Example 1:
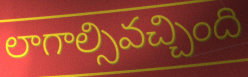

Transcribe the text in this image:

లాగాల్సివచ్చింది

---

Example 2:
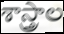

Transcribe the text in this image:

శాస్త్రాల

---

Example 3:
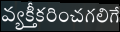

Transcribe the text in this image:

వ్యక్తీకరించగలిగే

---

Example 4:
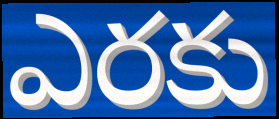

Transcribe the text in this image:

ఎరకు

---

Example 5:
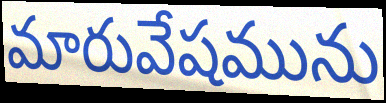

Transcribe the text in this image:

మారువేషమును